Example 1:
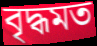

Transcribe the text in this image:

বৃদ্ধমত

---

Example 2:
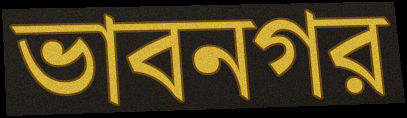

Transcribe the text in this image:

ভাবনগর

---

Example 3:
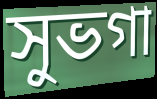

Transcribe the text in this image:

সুভগা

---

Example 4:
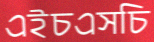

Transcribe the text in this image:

এইচএসচি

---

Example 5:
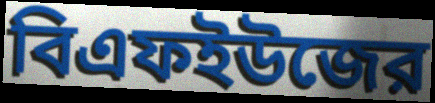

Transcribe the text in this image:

বিএফইউজের